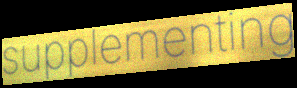
supplementing